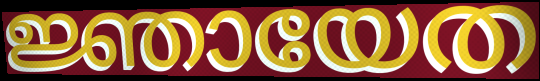
ജ്ഞായേത